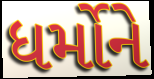
ધર્મોને